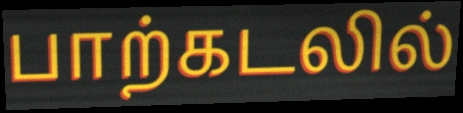
பாற்கடலில்